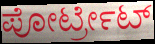
ಪೋರ್ಟ್ರೇಟ್